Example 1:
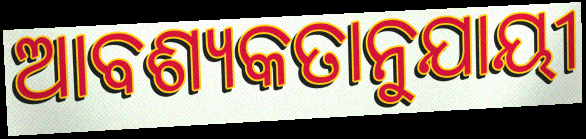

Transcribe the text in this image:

ଆବଶ୍ୟକତାନୁଯାୟୀ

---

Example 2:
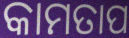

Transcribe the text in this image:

କାମତାପ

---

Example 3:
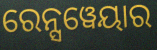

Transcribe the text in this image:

ରେନ୍ସୱେୟାର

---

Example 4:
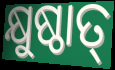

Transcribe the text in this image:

କ୍ଷୁଷ୍ଠାତ୍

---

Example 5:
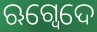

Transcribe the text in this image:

ଋଗ୍ଵେଦେ